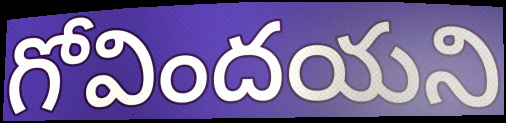
గోవిందయని